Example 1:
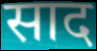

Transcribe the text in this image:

साद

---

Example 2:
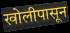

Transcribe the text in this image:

खोलीपासून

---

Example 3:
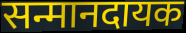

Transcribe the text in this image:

सन्मानदायक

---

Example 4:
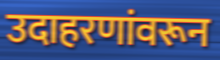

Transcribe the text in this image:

उदाहरणांवरून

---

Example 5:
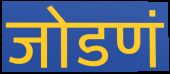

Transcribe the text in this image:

जोडणं